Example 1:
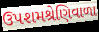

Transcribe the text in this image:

ઉપશમશ્રેણિવાળા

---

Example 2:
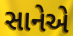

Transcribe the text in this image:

સાનેએ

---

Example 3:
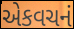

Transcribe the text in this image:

એકવચનં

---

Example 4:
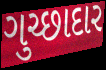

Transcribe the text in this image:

ગુચ્છાદાર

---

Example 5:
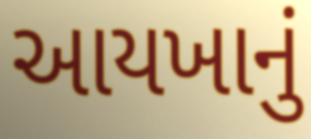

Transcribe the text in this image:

આયખાનું